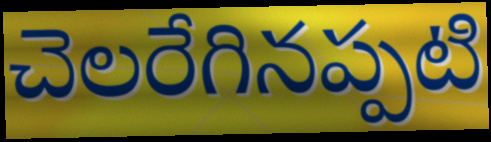
చెలరేగినప్పటి